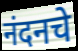
नंदनचे